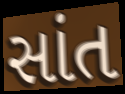
સાંત